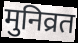
मुनिव्रत